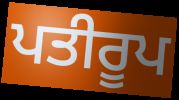
ਪਤੀਰੂਪ